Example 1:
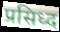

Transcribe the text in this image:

प्रसिध्द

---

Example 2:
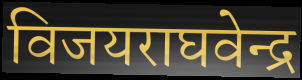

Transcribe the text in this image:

विजयराघवेन्द्र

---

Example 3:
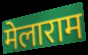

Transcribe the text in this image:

मेलाराम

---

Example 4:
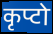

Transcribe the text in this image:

कृप्टो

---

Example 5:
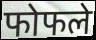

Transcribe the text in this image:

फोफले